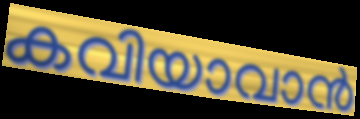
കവിയാവാൻ